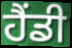
ਹੈਂਡੀ